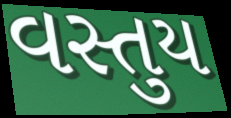
વસ્તુય